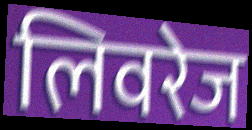
लिवरेज